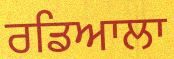
ਰਡਿਆਲਾ